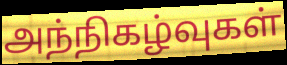
அந்நிகழ்வுகள்